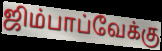
ஜிம்பாப்வேக்கு